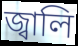
জ্বালি